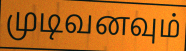
முடிவனவும்